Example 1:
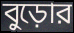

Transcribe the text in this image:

বুড়োর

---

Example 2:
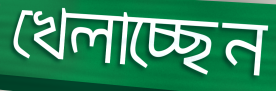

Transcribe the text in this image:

খেলাচ্ছেন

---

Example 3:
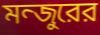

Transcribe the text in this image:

মন্জুরের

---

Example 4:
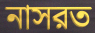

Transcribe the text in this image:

নাসরত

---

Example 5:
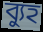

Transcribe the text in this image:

ব্যুহ